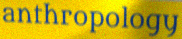
anthropology